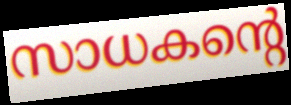
സാധകന്റെ